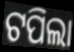
ଟପିଲା